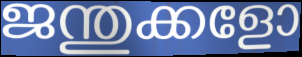
ജന്തുക്കളോ